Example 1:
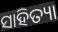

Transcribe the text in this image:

ସାହିତ୍ୟା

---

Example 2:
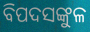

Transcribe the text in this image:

ବିପଦସଙ୍କୁଳ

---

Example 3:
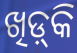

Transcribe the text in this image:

ଖିଡ଼୍‌କି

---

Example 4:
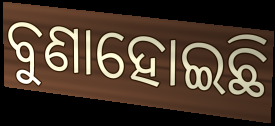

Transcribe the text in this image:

ବୁଣାହୋଇଛି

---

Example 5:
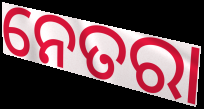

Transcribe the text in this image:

ନେତରା